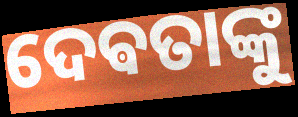
ଦେଵତାଙ୍କୁ